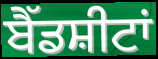
ਬੈੱਡਸ਼ੀਟਾਂ